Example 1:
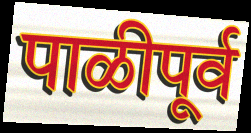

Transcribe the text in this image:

पाळीपूर्व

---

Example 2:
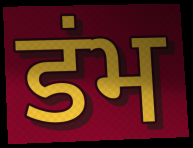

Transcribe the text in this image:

डंभ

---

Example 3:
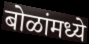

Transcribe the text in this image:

बोळांमध्ये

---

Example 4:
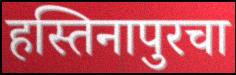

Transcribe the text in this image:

हस्तिनापुरचा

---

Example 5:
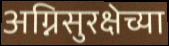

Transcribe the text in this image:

अग्निसुरक्षेच्या